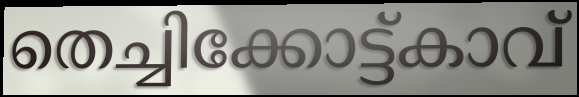
തെച്ചിക്കോട്ട്കാവ്